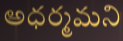
అధర్మమని